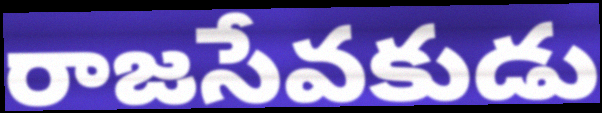
రాజసేవకుడు